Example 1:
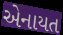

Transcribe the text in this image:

એનાયત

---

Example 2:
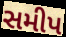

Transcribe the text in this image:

સમીપ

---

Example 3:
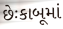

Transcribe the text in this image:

છેઃકાબૂમાં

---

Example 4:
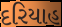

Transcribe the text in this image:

દરિયાહ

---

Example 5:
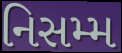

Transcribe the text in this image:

નિસમ્મ